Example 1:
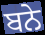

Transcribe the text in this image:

ਬਨੇ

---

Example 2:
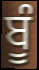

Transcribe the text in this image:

ਬੂੰ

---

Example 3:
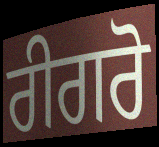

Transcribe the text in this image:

ਰੀਗਰੋ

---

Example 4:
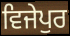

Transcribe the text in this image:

ਵਿਜੇਪੁਰ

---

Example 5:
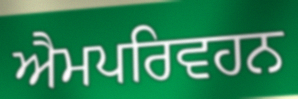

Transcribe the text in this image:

ਐਮਪਰਿਵਹਨ